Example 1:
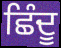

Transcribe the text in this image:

ਛਿੰਦੂ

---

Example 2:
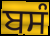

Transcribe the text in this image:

ਬਸੰ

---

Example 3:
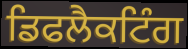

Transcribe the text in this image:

ਡਿਫਲੈਕਟਿੰਗ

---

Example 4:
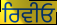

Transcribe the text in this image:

ਰਿਵੀਓ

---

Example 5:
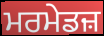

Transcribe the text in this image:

ਮਰਮੇਡਜ਼